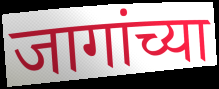
जागांच्या